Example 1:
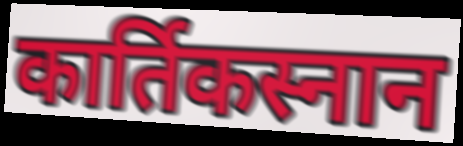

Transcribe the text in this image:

कार्तिकस्नान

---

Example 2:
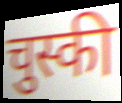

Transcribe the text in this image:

चुस्की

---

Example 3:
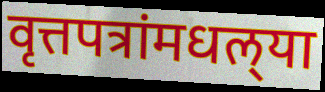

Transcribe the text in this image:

वृत्तपत्रांमधल्या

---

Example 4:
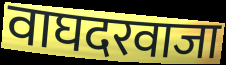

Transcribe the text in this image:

वाघदरवाजा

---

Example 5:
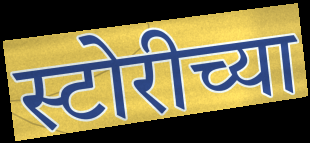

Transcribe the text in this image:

स्टोरीच्या